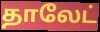
தாலேட்